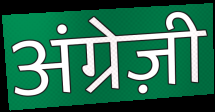
अंग्रेज़ी